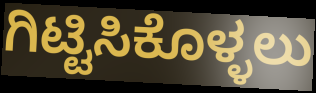
ಗಿಟ್ಟಿಸಿಕೊಳ್ಳಲು